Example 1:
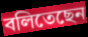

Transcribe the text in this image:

বলিতেছেন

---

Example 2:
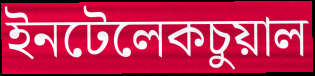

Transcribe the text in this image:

ইনটেলেকচুয়াল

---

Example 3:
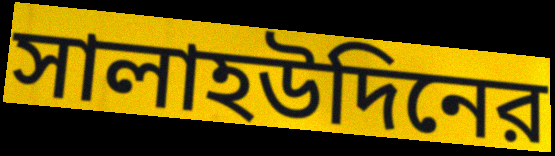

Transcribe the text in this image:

সালাহউদিনের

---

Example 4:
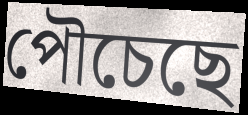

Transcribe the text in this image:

পৌচেছে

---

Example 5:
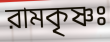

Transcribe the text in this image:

রামকৃষ্ণঃ